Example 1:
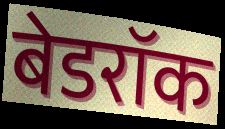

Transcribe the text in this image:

बेडरॉक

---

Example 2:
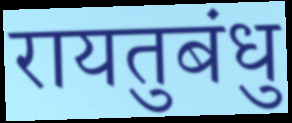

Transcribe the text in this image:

रायतुबंधु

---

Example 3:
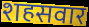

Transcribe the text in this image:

शहसवार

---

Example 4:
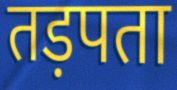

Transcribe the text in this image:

तड़पता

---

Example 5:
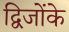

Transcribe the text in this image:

द्विजोंके